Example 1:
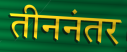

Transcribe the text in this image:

तीननंतर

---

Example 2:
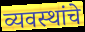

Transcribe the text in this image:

व्यवस्थांचे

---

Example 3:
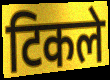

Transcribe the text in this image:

टिकले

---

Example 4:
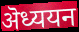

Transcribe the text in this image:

ऄध्ययन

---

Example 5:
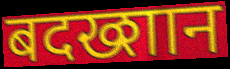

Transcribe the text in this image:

बदख्शान